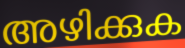
അഴിക്കുക